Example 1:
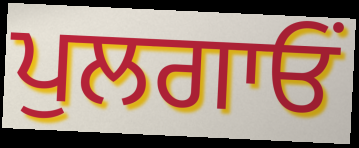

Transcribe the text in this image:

ਪੁਲਗਾਓਂ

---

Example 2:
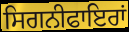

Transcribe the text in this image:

ਸਿਗਨੀਫਾਇਰਾਂ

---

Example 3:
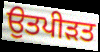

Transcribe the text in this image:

ਉਤਪੀੜਤ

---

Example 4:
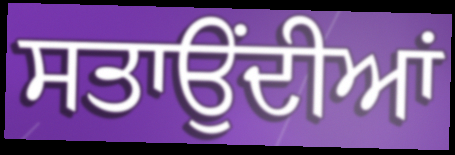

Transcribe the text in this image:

ਸਤਾਉਂਦੀਆਂ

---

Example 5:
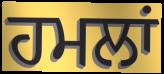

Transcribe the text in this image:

ਹਮਲਾਂ